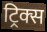
ट्रिक्‍स